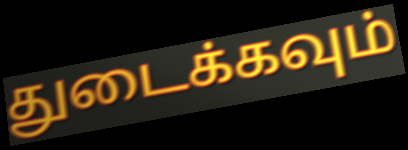
துடைக்கவும்